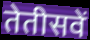
तेतीसवें